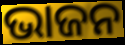
ଭାଜନ